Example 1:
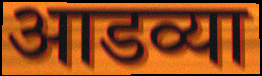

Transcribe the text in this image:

आडव्या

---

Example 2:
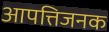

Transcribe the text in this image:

आपत्तिजनक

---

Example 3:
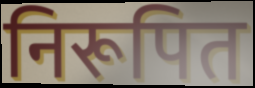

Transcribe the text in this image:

निरूपित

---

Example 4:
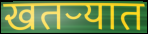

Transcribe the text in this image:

खतऱ्यात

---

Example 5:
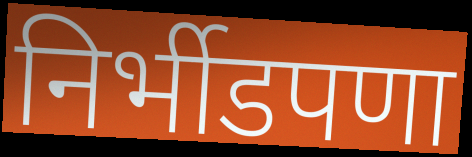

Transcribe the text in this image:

निर्भीडपणा